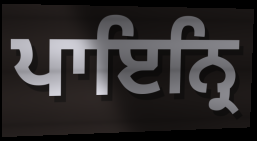
ਪਾਇਨ੍ਰਿ